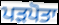
ਪੜਪੋਤਾ